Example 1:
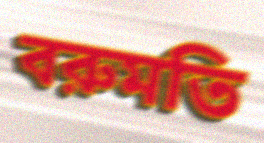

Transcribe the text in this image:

বরুমতি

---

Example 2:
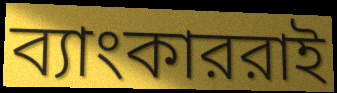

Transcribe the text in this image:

ব্যাংকাররাই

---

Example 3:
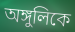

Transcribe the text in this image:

অঙ্গুলিকে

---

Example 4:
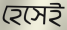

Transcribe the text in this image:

হেসেই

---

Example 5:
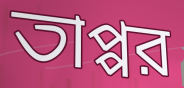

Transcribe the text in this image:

তাপ্পর